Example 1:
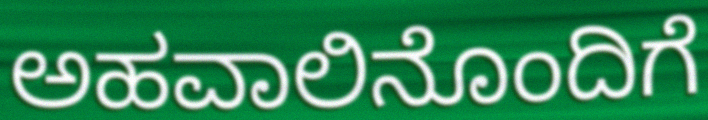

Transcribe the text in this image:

ಅಹವಾಲಿನೊಂದಿಗೆ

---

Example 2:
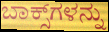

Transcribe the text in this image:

ಬಾಕ್ಸ್‌ಗಳನ್ನು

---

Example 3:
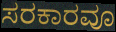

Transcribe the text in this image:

ಸರಕಾರವೂ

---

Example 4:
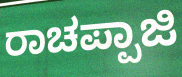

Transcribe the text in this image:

ರಾಚಪ್ಪಾಜಿ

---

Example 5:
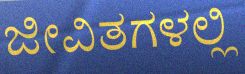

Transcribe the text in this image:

ಜೀವಿತಗಳಲ್ಲಿ